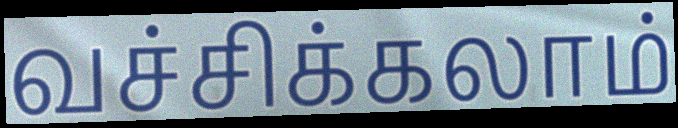
வச்சிக்கலாம்